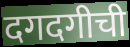
दगदगीची